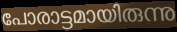
പോരാട്ടമായിരുന്നു